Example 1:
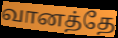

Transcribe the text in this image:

வானத்தே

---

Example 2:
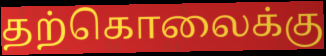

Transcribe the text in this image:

தற்கொலைக்கு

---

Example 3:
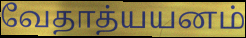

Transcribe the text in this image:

வேதாத்யயனம்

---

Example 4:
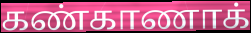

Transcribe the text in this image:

கண்காணாக்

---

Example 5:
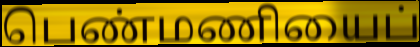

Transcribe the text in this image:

பெண்மணியைப்